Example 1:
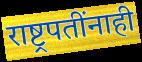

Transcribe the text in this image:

राष्ट्रपतींनाही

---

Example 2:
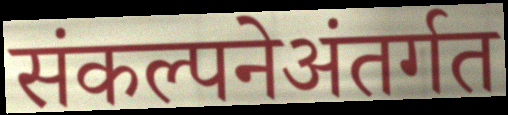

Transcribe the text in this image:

संकल्पनेअंतर्गत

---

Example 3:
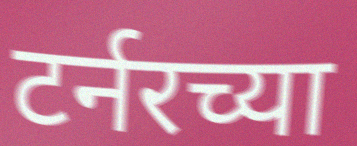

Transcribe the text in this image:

टर्नरच्या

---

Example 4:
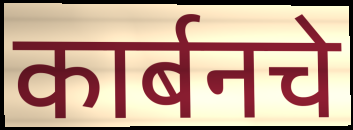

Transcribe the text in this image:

कार्बनचे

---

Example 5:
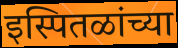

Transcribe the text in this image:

इस्पितळांच्या